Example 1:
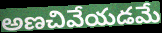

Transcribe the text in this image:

అణచివేయడమే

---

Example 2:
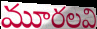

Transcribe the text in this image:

మూరలవి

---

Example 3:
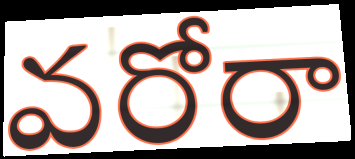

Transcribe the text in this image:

వరోరా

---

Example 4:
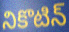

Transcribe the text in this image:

నికొటిన్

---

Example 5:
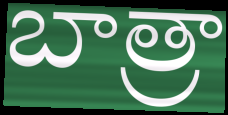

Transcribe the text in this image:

బాత్రా